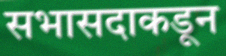
सभासदाकडून